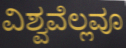
ವಿಶ್ವವೆಲ್ಲವೂ